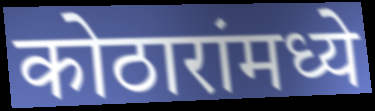
कोठारांमध्ये